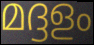
മദ്ദളം